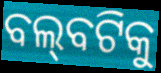
ବଲ୍‌ବଟିକୁ